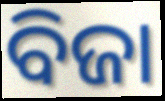
ବିଜା